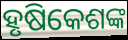
ହୃଷିକେଶଙ୍କ